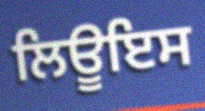
ਲਿਊਇਸ